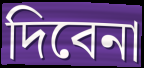
দিবেনা